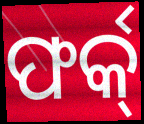
ଫର୍କ୍